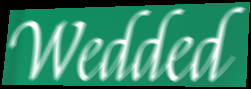
Wedded